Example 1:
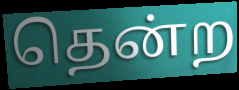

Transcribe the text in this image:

தென்ற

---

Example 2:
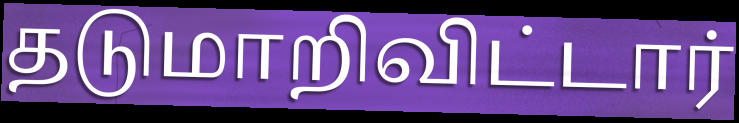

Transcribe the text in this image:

தடுமாறிவிட்டார்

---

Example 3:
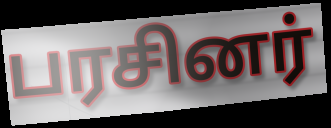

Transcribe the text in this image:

பரசினர்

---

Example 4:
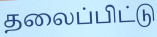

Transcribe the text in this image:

தலைப்பிட்டு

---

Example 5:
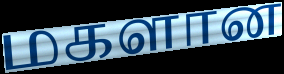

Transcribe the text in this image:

மகளான